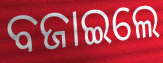
ବଜାଇଲେ